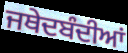
ਜਥੇਦਬੰਦੀਆਂ